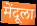
मेंदूला